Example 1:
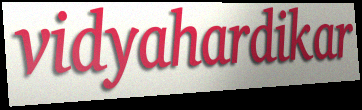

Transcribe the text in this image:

vidyahardikar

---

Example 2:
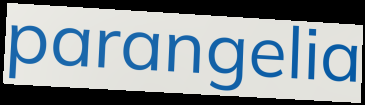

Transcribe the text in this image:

parangelia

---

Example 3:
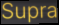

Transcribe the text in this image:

Supra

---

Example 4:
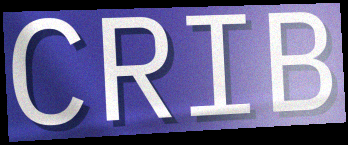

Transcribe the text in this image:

CRIB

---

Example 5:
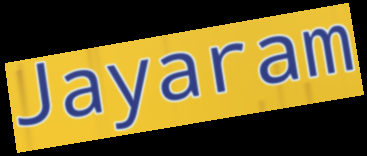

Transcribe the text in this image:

Jayaram